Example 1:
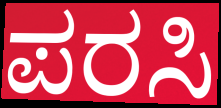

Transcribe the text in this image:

ಪರಸಿ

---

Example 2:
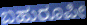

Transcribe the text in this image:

ಬಹುರೂಪೀ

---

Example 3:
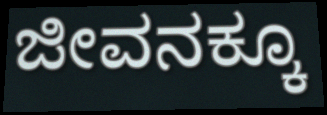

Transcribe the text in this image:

ಜೀವನಕ್ಕೂ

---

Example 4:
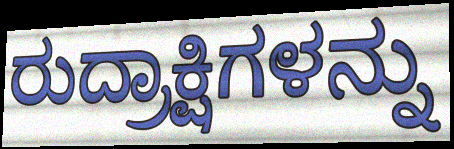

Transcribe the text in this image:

ರುದ್ರಾಕ್ಷಿಗಳನ್ನು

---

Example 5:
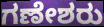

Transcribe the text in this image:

ಗಣೇಶರು